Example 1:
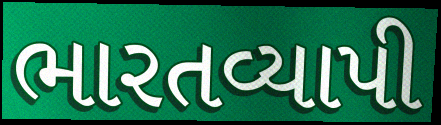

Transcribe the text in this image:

ભારતવ્યાપી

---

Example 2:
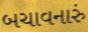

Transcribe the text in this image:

બચાવનારું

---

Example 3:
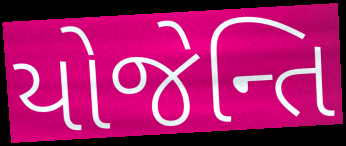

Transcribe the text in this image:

યોજેન્તિ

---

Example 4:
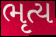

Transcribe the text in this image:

ભૃત્ય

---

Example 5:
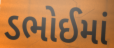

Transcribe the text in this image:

ડભોઈમાં